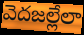
వెదజల్లేలా